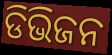
ଡିଭିଜନ